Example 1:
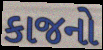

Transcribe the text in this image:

કાજનો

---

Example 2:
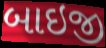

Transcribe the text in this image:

બાઇજી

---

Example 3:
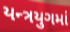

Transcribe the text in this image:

યન્ત્રયુગમાં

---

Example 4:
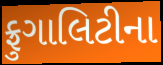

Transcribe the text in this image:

ફ્રુગાલિટીના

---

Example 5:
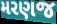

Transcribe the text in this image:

મરણજ